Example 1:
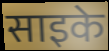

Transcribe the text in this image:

साइके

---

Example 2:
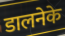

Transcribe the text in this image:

डालनेके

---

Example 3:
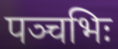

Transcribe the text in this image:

पञ्चभिः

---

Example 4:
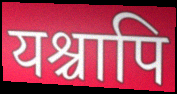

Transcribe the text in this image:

यश्चापि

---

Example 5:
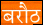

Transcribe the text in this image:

बरौठ